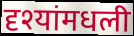
दृश्यांमधली